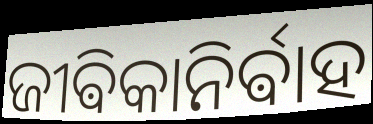
ଜୀଵିକାନିର୍ଵାହ